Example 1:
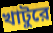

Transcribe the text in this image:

খাটুরে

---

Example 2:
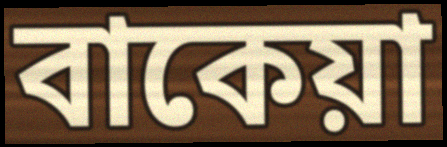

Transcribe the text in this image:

বাকেয়া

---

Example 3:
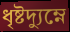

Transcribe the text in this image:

ধৃষ্টদ্যুম্নে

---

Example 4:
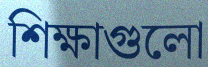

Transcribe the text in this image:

শিক্ষাগুলো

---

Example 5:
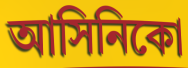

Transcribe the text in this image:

আসিনিকো